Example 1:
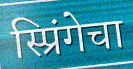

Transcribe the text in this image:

स्प्रिंगेचा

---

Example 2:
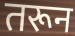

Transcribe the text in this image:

तरून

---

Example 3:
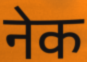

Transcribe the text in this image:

नेक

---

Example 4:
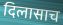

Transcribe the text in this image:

दिलासाच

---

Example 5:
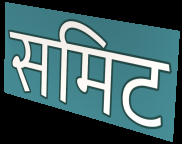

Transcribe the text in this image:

समिट